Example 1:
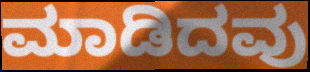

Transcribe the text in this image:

ಮಾಡಿದವು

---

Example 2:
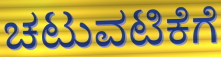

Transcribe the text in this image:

ಚಟುವಟಿಕೆಗೆ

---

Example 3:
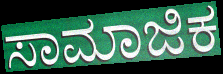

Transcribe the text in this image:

ಸಾಮಾಜಿಕ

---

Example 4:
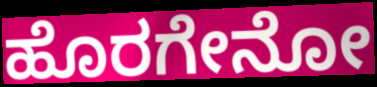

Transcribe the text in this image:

ಹೊರಗೇನೋ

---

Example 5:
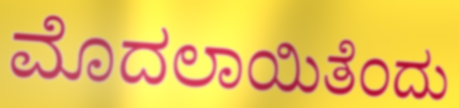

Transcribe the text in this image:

ಮೊದಲಾಯಿತೆಂದು